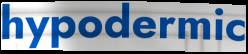
hypodermic